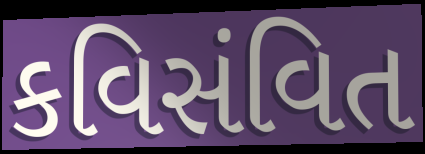
કવિસંવિત